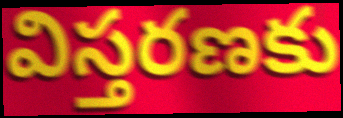
విస్తరణకు